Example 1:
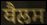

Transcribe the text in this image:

ਥੈਲਸ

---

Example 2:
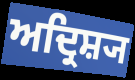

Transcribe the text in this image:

ਅਦ੍ਰਿਸ਼੍ਯ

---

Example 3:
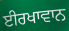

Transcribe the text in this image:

ਈਰਖਾਵਾਨ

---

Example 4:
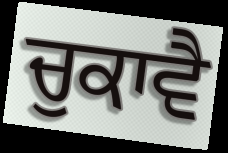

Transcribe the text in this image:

ਚੁਕਾਵੈ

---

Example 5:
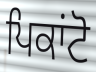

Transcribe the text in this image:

ਪਿਕਾਂਟੋ